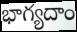
భాగ్యదాం